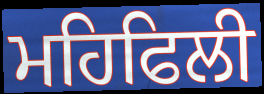
ਮਹਿਫਿਲੀ